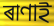
ৰাণাই